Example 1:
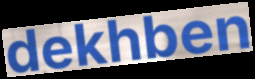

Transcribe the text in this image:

dekhben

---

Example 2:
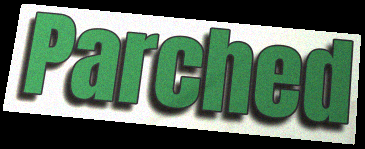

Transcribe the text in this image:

Parched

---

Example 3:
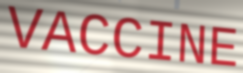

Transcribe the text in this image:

VACCINE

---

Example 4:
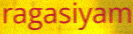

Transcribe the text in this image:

ragasiyam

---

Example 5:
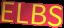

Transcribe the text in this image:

ELBS